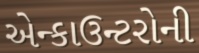
એન્કાઉન્ટરોની